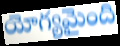
యోగ్యమైంది